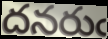
దనరుఁ